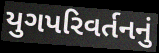
યુગપરિવર્તનનું